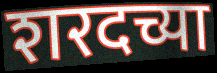
शरदच्या